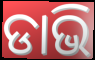
ଡାଭି